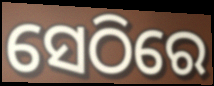
ସେଠିରେ